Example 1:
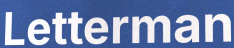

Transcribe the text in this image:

Letterman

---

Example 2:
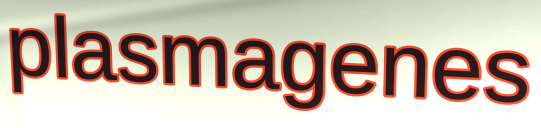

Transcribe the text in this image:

plasmagenes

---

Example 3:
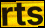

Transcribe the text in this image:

rts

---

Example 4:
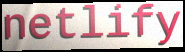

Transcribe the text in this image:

netlify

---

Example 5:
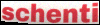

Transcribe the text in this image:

schenti